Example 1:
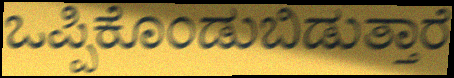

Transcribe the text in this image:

ಒಪ್ಪಿಕೊಂಡುಬಿಡುತ್ತಾರೆ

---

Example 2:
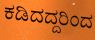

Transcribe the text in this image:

ಕಡಿದದ್ದರಿಂದ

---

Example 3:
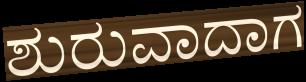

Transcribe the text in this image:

ಶುರುವಾದಾಗ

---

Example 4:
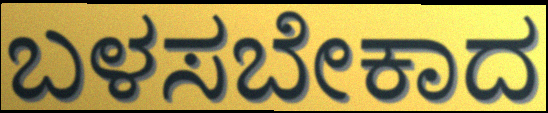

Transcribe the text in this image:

ಬಳಸಬೇಕಾದ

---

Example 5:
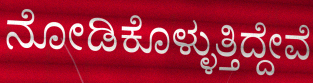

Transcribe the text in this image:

ನೋಡಿಕೊಳ್ಳುತ್ತಿದ್ದೇವೆ